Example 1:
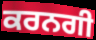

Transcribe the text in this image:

ਕਰਨਗੀ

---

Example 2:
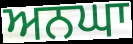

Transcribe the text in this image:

ਅਨਘਾ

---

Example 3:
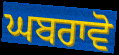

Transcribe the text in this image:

ਘਬਰਾਵੋ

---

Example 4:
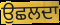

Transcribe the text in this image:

ਉਛਲਦਾ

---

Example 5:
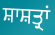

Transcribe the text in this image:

ਸ਼ਾਸ਼ਤ੍ਰਾਂ